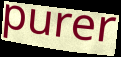
purer